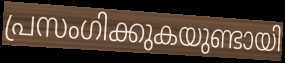
പ്രസംഗിക്കുകയുണ്ടായി